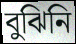
বুঝিনি